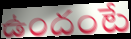
ఉందంటే